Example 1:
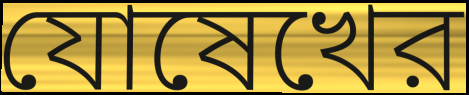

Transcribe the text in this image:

যোষেখের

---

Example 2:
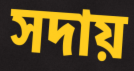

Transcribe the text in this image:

সদায়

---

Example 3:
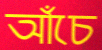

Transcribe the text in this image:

আঁচে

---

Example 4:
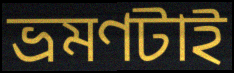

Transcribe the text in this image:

ভ্রমণটাই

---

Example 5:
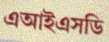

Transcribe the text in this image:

এআইএসডি